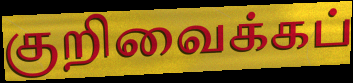
குறிவைக்கப்